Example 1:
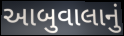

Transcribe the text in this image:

આબુવાલાનું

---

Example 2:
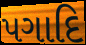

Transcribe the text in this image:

પગાદિ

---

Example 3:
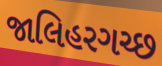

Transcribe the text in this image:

જાલિહરગચ્છ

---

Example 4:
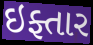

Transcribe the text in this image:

ઇફ્તાર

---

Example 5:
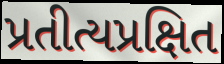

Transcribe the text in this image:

પ્રતીત્યપ્રક્ષિત